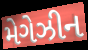
મેગેઝીન